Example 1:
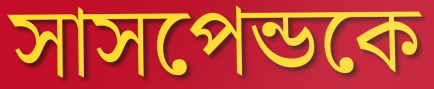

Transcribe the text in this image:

সাসপেন্ডকে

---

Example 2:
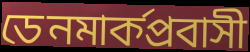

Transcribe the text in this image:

ডেনমার্কপ্রবাসী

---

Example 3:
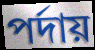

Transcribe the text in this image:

পর্দায়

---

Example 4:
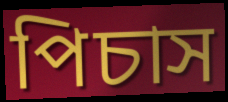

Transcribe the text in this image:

পিচাস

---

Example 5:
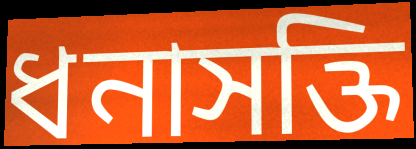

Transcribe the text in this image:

ধনাসক্তি